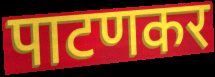
पाटणकर